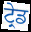
ਟ੍ਰੇਡ